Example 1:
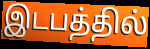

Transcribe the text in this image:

இடபத்தில்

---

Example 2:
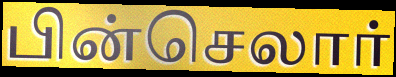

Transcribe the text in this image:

பின்செலார்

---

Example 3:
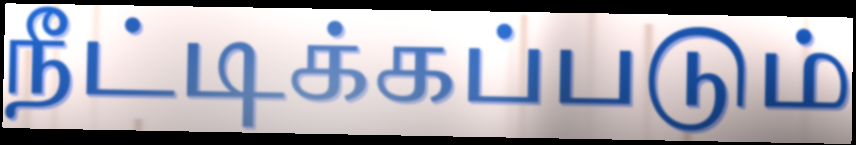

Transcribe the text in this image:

நீட்டிக்கப்படும்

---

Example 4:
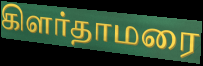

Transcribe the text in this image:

கிளர்தாமரை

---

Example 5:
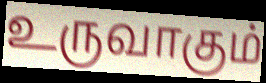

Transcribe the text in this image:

உருவாகும்